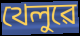
থেলুৱে